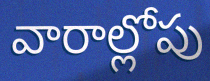
వారాల్లోపు